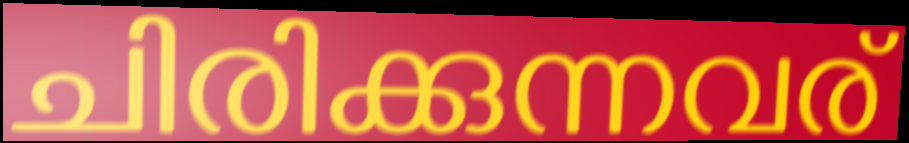
ചിരിക്കുന്നവര്